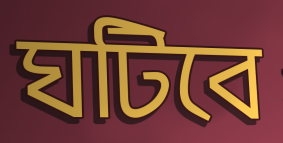
ঘটিবে